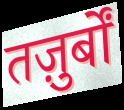
तज़ुर्बों